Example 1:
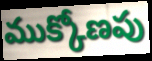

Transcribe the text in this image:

ముక్కోణపు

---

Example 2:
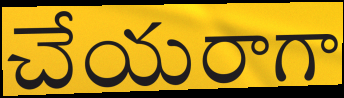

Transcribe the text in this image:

చేయరాగా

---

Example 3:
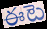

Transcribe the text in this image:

ఈటె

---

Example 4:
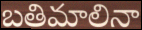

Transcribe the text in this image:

బతిమాలినా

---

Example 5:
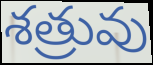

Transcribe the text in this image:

శత్రువు